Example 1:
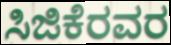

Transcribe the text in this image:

ಸಿಜಿಕೆರವರ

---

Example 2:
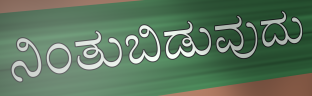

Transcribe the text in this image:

ನಿಂತುಬಿಡುವುದು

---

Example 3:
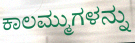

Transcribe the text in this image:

ಕಾಲಮ್ಮುಗಳನ್ನು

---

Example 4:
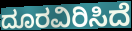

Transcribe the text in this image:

ದೂರವಿರಿಸಿದೆ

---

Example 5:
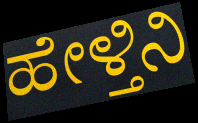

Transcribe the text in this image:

ಹೇಳ್ತಿನಿ